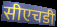
सीएचडी